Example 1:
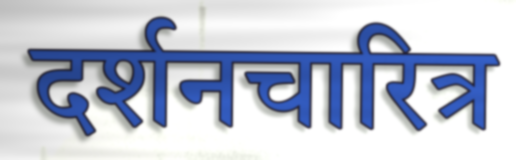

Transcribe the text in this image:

दर्शनचारित्र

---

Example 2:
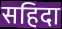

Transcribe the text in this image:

सहिदा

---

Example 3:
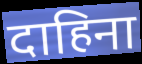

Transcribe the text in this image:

दाहिना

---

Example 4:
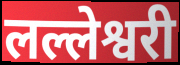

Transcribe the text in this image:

लल्लेश्वरी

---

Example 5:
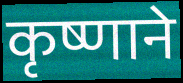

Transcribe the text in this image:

कृष्णाने